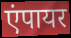
एंपायर